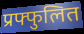
प्रफ्फुलित